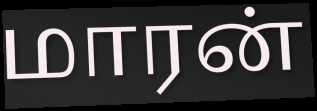
மாரன்